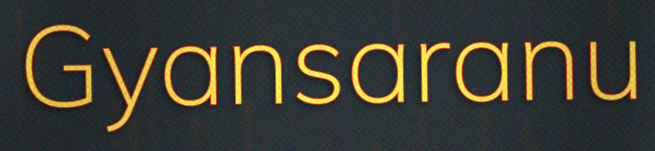
Gyansaranu